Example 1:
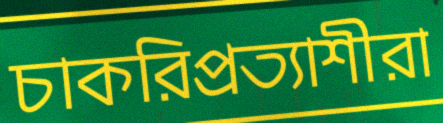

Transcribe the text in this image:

চাকরিপ্রত্যাশীরা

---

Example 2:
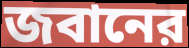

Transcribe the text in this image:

জবানের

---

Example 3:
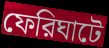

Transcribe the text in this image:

ফেরিঘাটে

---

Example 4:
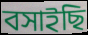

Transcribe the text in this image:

বসাইছি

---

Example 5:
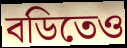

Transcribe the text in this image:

বডিতেও